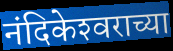
नंदिकेश्वराच्या